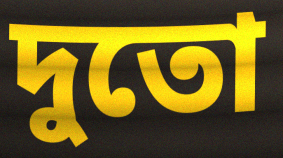
দুতো